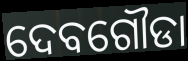
ଦେବଗୌଡା